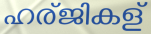
ഹര്ജികള്